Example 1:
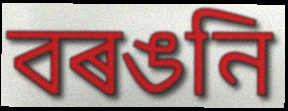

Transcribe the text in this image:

বৰঙনি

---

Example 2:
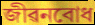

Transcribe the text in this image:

জীৱনবোধ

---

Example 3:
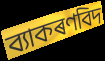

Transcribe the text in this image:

ব্যাকৰণবিদ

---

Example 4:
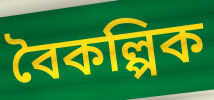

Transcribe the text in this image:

বৈকল্পিক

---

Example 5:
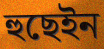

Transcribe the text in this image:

হুছেইন